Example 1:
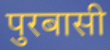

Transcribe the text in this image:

पुरबासी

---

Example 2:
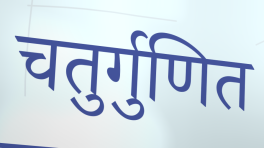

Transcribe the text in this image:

चतुर्गुणित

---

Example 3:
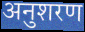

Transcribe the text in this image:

अनुशरण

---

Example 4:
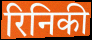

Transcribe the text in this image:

रिनिकी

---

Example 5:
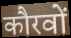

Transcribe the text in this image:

कौरवों